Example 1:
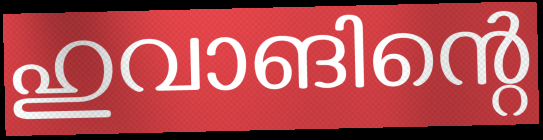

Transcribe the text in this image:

ഹുവാങിന്റെ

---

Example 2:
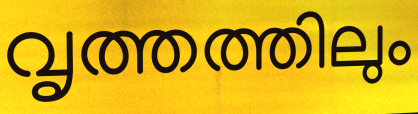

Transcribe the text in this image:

വൃത്തത്തിലും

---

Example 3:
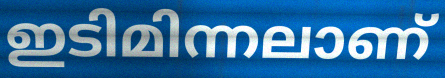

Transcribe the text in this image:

ഇടിമിന്നലാണ്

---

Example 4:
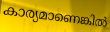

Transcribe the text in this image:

കാര്യമാണെങ്കിൽ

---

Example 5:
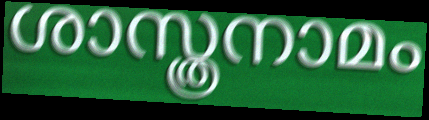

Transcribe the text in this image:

ശാസ്ത്രനാമം